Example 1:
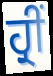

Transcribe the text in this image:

ਹ੍ਰੀਂ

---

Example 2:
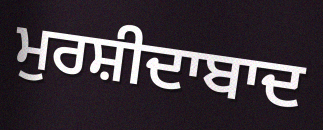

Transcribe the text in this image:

ਮੁਰਸ਼ੀਦਾਬਾਦ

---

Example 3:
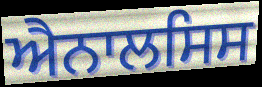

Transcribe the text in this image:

ਐਨਾਲਸਿਸ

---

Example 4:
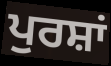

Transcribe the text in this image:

ਪੁਰਸ਼ਾਂ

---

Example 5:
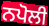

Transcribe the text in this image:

ਨਪੋਲੀ